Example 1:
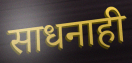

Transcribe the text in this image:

साधनाही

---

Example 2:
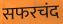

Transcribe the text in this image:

सफरचंद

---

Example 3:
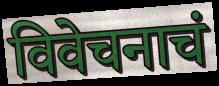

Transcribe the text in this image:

विवेचनाचं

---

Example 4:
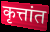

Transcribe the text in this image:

कृत्तांत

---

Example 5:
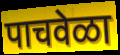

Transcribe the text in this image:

पाचवेळा